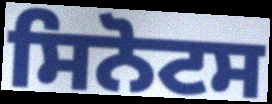
ਸਿਨੋਟਸ